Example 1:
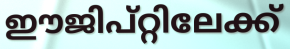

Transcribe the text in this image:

ഈജിപ്റ്റിലേക്ക്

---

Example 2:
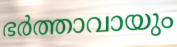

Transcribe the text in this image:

ഭർത്താവായും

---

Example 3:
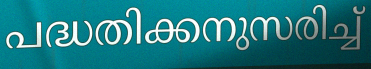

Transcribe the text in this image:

പദ്ധതിക്കനുസരിച്ച്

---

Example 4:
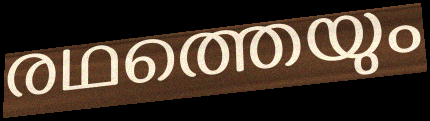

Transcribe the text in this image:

രഥത്തെയും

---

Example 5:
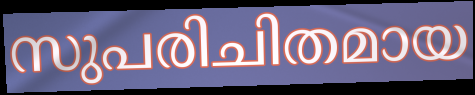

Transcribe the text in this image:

സുപരിചിതമായ